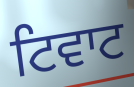
ਟਿਵਾਟ